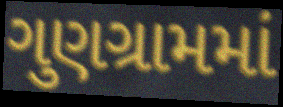
ગુણગ્રામમાં